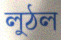
লুঠল